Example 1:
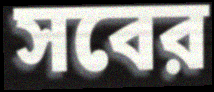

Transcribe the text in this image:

সবের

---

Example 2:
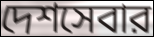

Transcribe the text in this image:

দেশসেবার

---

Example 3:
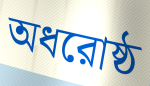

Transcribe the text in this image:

অধরোষ্ঠ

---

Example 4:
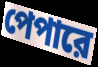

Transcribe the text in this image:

পেপারে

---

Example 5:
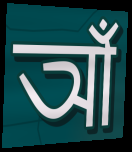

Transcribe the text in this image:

আঁ